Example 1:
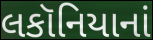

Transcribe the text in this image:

લકૉનિયાનાં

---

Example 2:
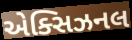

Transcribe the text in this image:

એક્સિઝનલ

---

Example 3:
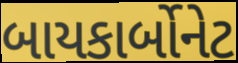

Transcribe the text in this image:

બાયકાર્બોનેટ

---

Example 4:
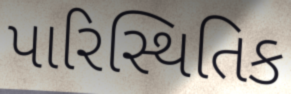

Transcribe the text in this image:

પારિસ્થિતિક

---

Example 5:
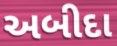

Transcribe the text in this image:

અબીદા